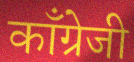
काँग्रेजी